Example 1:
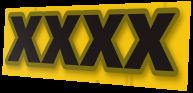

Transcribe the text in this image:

xxxx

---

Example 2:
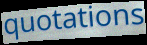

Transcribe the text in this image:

quotations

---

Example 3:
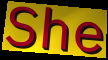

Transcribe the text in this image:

She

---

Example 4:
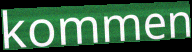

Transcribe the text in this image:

kommen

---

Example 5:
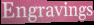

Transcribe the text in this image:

Engravings